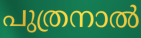
പുത്രനാൽ